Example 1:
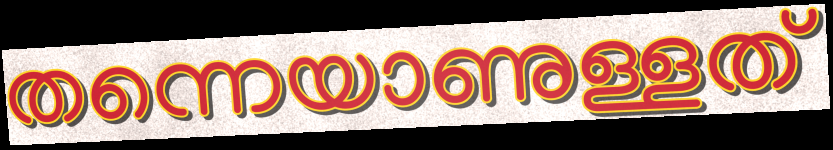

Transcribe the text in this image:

തന്നെയാണുള്ളത്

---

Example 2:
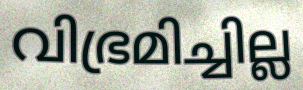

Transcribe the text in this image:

വിഭ്രമിച്ചില്ല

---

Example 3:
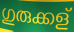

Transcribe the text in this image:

ഗുരുക്കള്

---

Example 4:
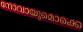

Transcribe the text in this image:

നോവായുമൊക്കെ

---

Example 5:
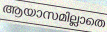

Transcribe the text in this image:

ആയാസമില്ലാതെ